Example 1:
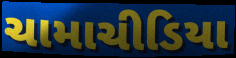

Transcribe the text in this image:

ચામાચીડિયા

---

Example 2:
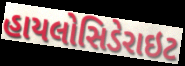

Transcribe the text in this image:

હાયલોસિડેરાઇટ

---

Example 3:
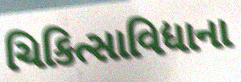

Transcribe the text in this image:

ચિકિત્સાવિદ્યાના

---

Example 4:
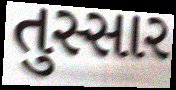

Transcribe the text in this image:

તુસ્સાર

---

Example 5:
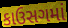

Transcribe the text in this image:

કાઉસગમાં